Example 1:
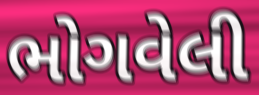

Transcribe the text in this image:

ભોગવેલી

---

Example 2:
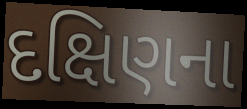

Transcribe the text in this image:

દક્ષિણના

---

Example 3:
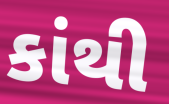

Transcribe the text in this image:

કાંથી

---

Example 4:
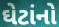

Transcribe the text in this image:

ઘેટાંનો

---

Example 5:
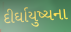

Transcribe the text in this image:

દીર્ઘાયુષ્યના